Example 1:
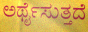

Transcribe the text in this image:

ಅರ್ಥೈಸುತ್ತದೆ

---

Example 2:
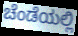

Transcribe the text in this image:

ಚೆಂಡೆಯಲ್ಲಿ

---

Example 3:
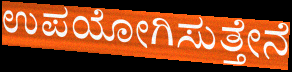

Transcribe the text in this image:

ಉಪಯೋಗಿಸುತ್ತೇನೆ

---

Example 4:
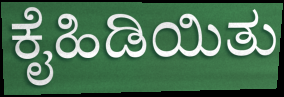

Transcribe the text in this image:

ಕೈಹಿಡಿಯಿತು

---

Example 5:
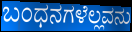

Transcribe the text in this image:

ಬಂಧನಗಳೆಲ್ಲವನು